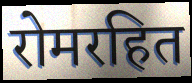
रोमरहित